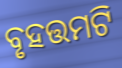
ବୃହତ୍ତମଟି